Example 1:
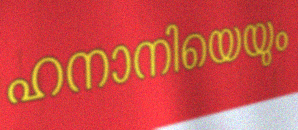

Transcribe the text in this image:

ഹനാനിയെയും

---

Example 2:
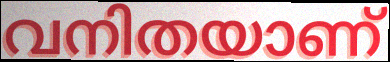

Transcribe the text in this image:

വനിതയാണ്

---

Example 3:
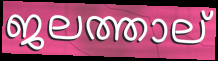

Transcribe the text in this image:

ജലത്താല്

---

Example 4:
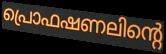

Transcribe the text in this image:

പ്രൊഫഷണലിന്റെ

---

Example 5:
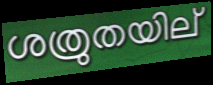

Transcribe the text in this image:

ശത്രുതയില്